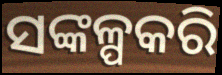
ସଙ୍କଳ୍ପକରି